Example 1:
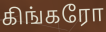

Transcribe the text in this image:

கிங்கரோ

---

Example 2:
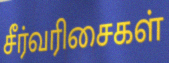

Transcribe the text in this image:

சீர்வரிசைகள்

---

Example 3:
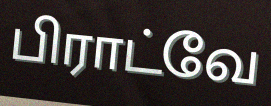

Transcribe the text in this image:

பிராட்வே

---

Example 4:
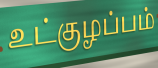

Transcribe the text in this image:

உட்குழப்பம்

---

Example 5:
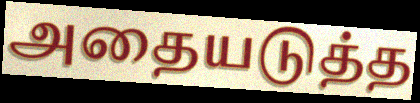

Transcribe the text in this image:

அதையடுத்த